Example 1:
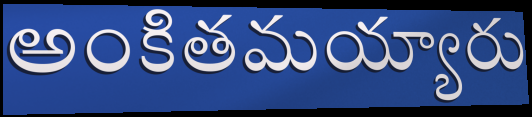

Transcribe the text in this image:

అంకితమయ్యారు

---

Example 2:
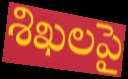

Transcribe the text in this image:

శిఖలపై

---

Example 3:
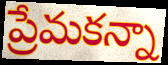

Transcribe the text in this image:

ప్రేమకన్నా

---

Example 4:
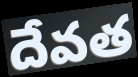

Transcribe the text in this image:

దేవత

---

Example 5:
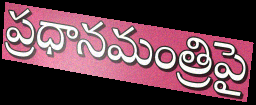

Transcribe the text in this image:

ప్రధానమంత్రిపై